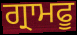
ਗ੍ਰਾਮਫੂ